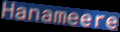
Hanameere